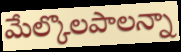
మేల్కొలపాలన్నా